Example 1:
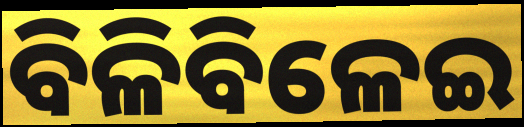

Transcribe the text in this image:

ବିଳିବିଳେଇ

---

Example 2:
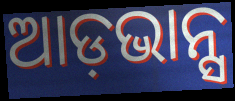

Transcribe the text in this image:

ଆଡ଼ଭାନ୍ସ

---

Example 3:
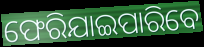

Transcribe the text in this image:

ଫେରିଯାଇପାରିବେ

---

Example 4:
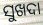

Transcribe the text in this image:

ସୁଖଦା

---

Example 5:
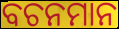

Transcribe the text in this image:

ବଚନମାନ